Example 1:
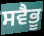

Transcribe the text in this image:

ਸਵੈਭੂ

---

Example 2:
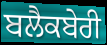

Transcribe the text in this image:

ਬਲੈਕਬੇਰੀ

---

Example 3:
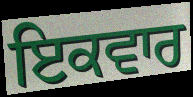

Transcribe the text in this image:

ਇਕਵਾਰ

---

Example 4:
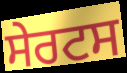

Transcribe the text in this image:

ਸੇਰਟਸ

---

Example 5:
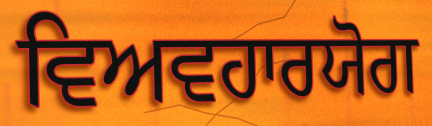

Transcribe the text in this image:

ਵਿਅਵਹਾਰਯੋਗ